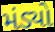
મંડ્યો